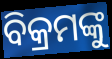
ବିକ୍ରମଙ୍କୁ